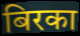
बिरका